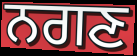
ਨਗਣ